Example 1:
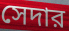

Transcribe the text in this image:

সেদার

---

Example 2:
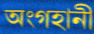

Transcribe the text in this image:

অংগহানী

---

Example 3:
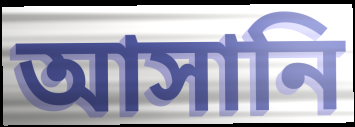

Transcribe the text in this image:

আসানি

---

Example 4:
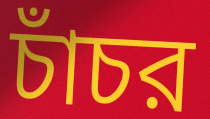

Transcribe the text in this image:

চাঁচর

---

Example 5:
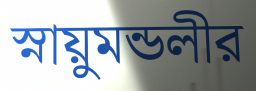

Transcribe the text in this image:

স্নায়ুমন্ডলীর